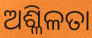
ଅଶ୍ଳିଳତା